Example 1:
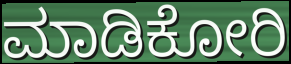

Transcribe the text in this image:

ಮಾಡಿಕೋರಿ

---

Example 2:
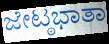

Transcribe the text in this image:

ಜೇಟ್ಠಭಾತಾ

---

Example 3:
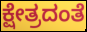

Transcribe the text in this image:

ಕ್ಷೇತ್ರದಂತೆ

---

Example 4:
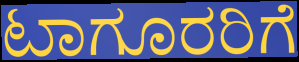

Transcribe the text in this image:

ಟಾಗೂರರಿಗೆ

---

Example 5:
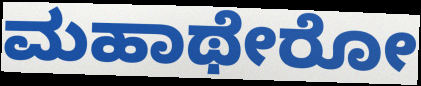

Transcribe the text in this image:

ಮಹಾಥೇರೋ